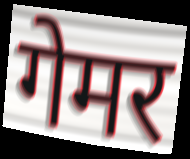
गेमर